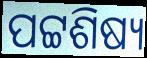
ପଟ୍ଟଶିଷ୍ୟ